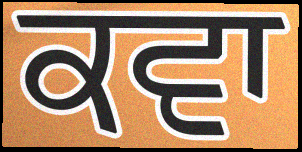
ਕਵਾ